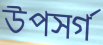
উপসৰ্গ